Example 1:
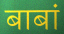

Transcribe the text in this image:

बाबां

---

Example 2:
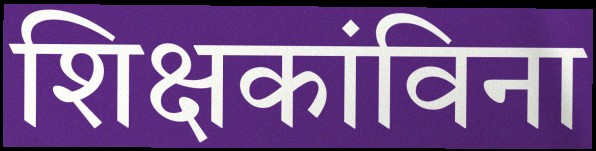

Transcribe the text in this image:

शिक्षकांविना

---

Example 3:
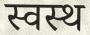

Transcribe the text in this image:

स्वस्थ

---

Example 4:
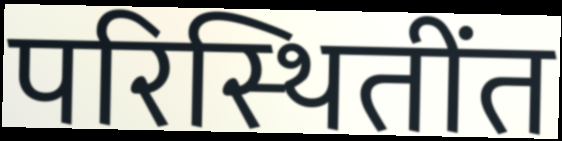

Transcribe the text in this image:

परिस्थितींत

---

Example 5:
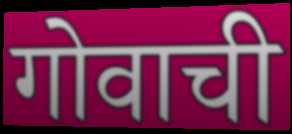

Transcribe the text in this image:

गोवाची